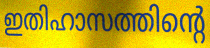
ഇതിഹാസത്തിന്റെ